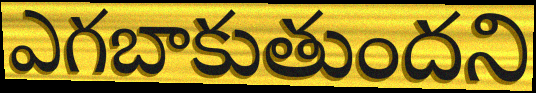
ఎగబాకుతుందని